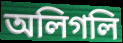
অলিগলি